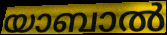
യാബാൽ